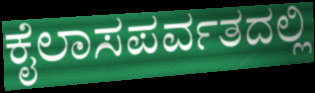
ಕೈಲಾಸಪರ್ವತದಲ್ಲಿ